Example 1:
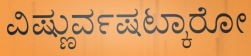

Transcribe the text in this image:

ವಿಷ್ಣುರ್ವಷಟ್ಕಾರೋ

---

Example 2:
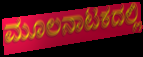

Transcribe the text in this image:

ಮೂಲನಾಟಕದಲ್ಲಿ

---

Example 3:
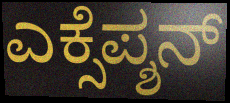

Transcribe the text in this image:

ಎಕ್ಸೆಪ್ಶನ್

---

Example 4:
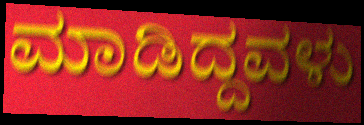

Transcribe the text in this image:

ಮಾಡಿದ್ದವಳು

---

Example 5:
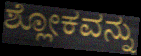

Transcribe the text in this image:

ಶ್ಲೋಕವನ್ನು